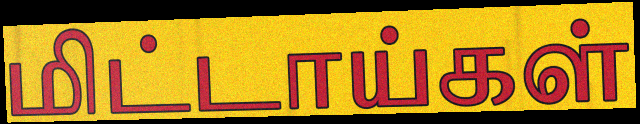
மிட்டாய்கள்